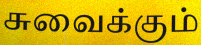
சுவைக்கும்